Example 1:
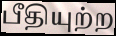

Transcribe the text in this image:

பீதியுற்ற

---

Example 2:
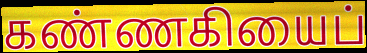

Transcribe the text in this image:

கண்ணகியைப்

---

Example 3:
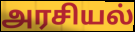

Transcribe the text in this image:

அரசியல்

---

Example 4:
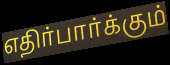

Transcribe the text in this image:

எதிர்பார்க்கும்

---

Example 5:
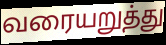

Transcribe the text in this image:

வரையறுத்து